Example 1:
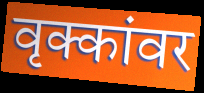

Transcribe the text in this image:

वृक्कांवर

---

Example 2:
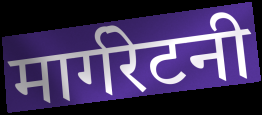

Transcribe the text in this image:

मार्गरेटनी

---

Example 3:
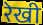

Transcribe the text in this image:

रेखी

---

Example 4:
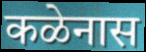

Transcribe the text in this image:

कळेनास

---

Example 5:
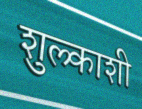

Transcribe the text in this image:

शुल्काशी